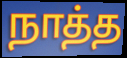
நாத்த